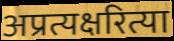
अप्रत्यक्षरित्या